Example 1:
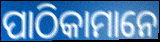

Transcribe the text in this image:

ପାଠିକାମାନେ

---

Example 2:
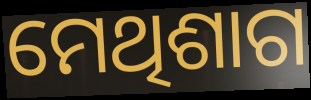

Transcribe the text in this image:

ମେଥିଶାଗ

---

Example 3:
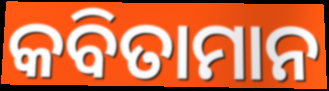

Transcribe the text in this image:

କବିତାମାନ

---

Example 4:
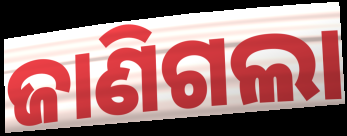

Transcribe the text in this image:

ଜାଣିଗଲା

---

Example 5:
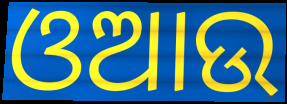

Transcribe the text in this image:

ଓଆଉ